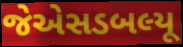
જેએસડબલ્યૂ